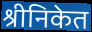
श्रीनिकेत